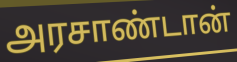
அரசாண்டான்